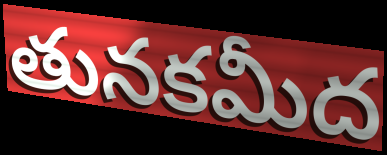
తునకమీద